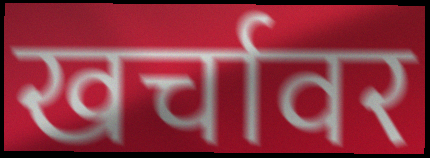
खर्चावर